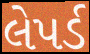
લેપર્ડ